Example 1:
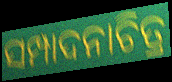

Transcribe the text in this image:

ସମ୍ପାଦନାଚିତ୍ର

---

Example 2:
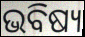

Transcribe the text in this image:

ଭବିଷ୍ଯ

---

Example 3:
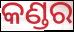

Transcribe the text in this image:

କଣ୍ଡର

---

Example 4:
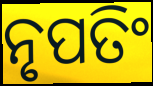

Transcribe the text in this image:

ନୃପତିଂ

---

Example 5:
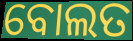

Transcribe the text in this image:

ବୋଲତ